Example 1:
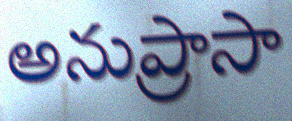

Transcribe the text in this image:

అనుప్రాసా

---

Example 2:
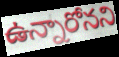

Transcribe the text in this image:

ఉన్నారోనని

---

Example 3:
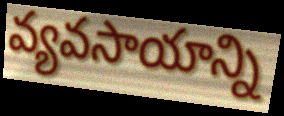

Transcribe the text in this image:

వ్యవసాయాన్ని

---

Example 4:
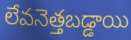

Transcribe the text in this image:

లేవనెత్తబడ్డాయి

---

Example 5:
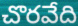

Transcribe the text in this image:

చొరవేది